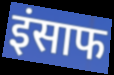
इंसाफ